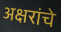
अक्षरांचे